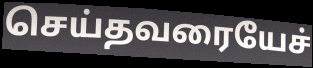
செய்தவரையேச்